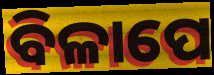
ବିଳାପେ